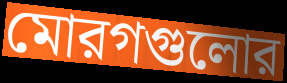
মোরগগুলোর